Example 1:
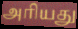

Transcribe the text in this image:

அரியது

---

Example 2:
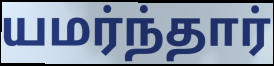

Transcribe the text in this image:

யமர்ந்தார்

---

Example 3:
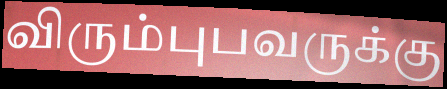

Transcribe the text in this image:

விரும்புபவருக்கு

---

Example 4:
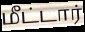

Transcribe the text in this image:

மீட்டார்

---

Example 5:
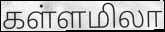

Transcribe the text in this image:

கள்ளமிலா